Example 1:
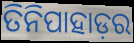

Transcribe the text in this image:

ତିନିପାହାଡ଼ର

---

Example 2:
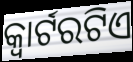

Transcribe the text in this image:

କ୍ୱାର୍ଟରଟିଏ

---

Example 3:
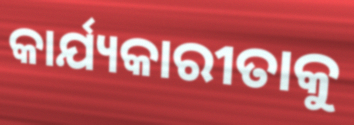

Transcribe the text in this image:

କାର୍ଯ୍ୟକାରୀତାକୁ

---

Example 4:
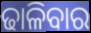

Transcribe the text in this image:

ଢାଳିବାର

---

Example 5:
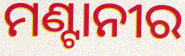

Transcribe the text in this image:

ମଣ୍ଟାନୀର